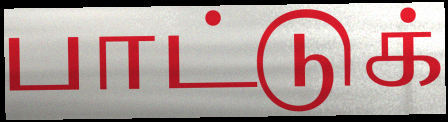
பாட்டுக்